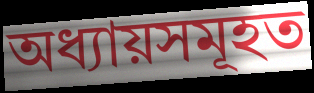
অধ্যায়সমূহত